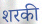
शरकी